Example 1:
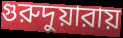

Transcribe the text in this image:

গুরুদুয়ারায়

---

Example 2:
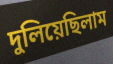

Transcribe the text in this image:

দুলিয়েছিলাম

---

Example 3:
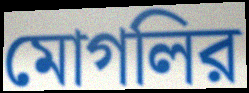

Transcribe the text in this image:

মোগলির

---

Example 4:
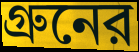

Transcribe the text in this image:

গ্রুনের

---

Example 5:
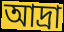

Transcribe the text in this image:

আদ্রা